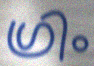
ഗ്രിം